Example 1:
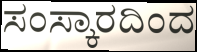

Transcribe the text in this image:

ಸಂಸ್ಕಾರದಿಂದ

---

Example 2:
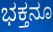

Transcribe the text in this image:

ಭಕ್ತನೂ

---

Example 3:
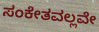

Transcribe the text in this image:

ಸಂಕೇತವಲ್ಲವೇ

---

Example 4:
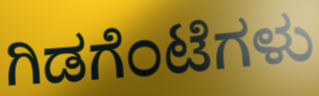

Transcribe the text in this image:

ಗಿಡಗೆಂಟೆಗಳು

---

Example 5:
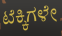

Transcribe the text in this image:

ಟೆಕ್ಕಿಗಳೇ